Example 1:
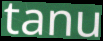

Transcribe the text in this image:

tanu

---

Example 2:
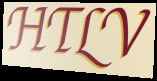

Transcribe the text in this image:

HTLV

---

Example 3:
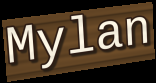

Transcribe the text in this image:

Mylan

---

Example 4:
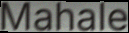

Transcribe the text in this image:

Mahale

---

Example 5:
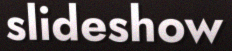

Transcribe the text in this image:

slideshow